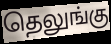
தெலுங்கு